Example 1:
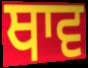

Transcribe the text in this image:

ਥਾਵ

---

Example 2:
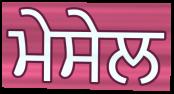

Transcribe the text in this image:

ਮੇਸੇਲ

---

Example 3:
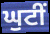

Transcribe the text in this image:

ਘੁਟੀਂ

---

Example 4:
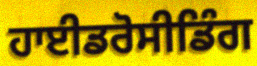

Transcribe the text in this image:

ਹਾਈਡਰੋਸੀਡਿੰਗ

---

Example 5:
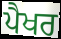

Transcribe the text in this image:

ਪੈਖਰ